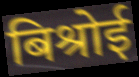
बिश्रोई